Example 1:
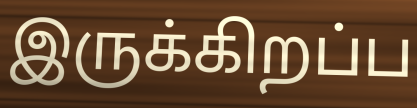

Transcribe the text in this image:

இருக்கிறப்ப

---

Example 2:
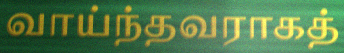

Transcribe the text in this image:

வாய்ந்தவராகத்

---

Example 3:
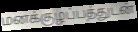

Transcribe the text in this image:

மனக்குழப்பத்துடன்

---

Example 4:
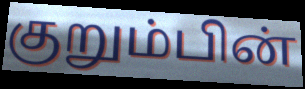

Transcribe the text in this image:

குறும்பின்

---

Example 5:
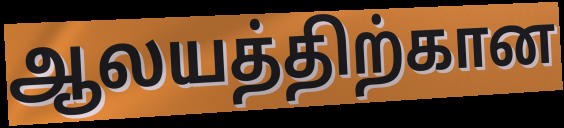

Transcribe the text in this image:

ஆலயத்திற்கான